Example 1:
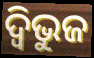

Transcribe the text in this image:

ଦ୍ଵିଭୁଜ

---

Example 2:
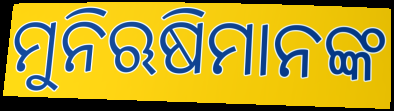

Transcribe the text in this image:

ମୁନିଋଷିମାନଙ୍କ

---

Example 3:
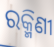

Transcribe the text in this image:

ରକ୍ମିଣୀ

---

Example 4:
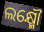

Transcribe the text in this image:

ଲକ୍ଷ୍ମୌ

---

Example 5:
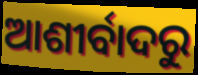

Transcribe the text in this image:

ଆଶୀର୍ବାଦରୁ